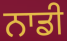
ਨਾਡੀ